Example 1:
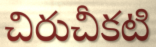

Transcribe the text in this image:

చిరుచీకటి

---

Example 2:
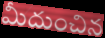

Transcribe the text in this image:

మీదుంచిన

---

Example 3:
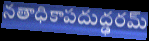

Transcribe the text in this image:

నతాధికాపదుద్ఢరమ్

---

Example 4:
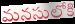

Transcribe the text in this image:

మనసులోకి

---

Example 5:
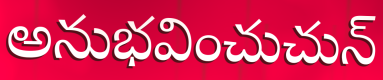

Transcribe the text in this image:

అనుభవించుచున్